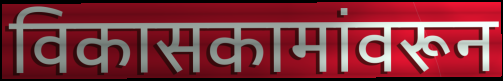
विकासकामांवरून